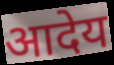
आदेय